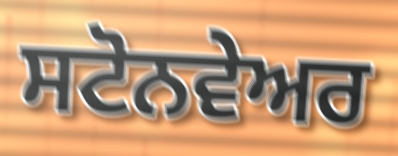
ਸਟੋਨਵੇਅਰ